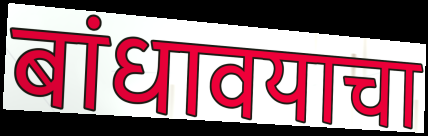
बांधावयाचा